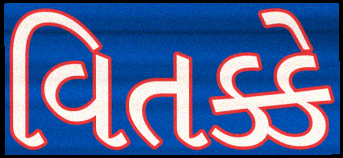
વિતક્કે